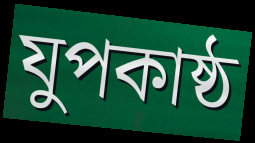
যুপকাষ্ঠ